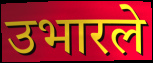
उभारले